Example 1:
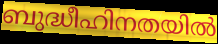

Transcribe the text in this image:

ബുദ്ധീഹിനതയിൽ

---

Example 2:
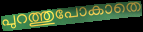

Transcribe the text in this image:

പുറത്തുപോകാതെ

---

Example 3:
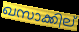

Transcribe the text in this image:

ഖസാക്കില്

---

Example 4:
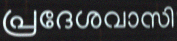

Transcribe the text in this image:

പ്രദേശവാസി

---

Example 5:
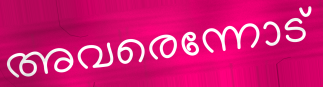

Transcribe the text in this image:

അവരെന്നോട്